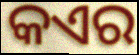
କଏର